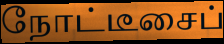
நோட்டீசைப்